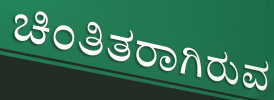
ಚಿಂತಿತರಾಗಿರುವ